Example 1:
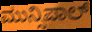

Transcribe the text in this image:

ಮುನ್ಸಿಪಾಲ್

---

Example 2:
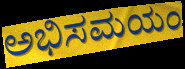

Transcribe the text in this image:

ಅಭಿಸಮಯಂ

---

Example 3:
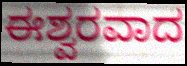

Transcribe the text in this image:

ಈಶ್ವರವಾದ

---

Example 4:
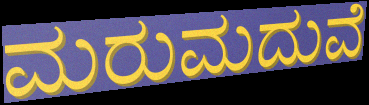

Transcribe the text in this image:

ಮರುಮದುವೆ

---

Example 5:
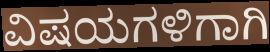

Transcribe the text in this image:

ವಿಷಯಗಳಿಗಾಗಿ